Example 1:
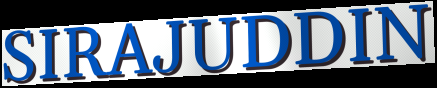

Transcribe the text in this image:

SIRAJUDDIN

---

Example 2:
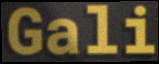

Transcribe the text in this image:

Gali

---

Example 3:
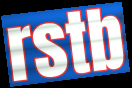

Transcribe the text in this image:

rstb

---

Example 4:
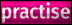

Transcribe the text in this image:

practise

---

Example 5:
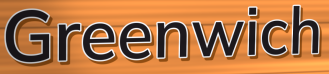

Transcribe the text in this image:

Greenwich